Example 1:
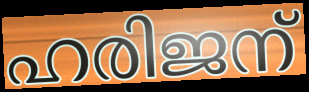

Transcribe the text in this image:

ഹരിജന്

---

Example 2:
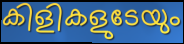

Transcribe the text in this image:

കിളികളുടേയും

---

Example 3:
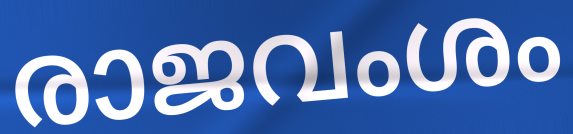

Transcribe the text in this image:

രാജവംശം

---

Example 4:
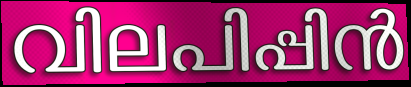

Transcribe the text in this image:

വിലപിപ്പിൻ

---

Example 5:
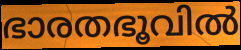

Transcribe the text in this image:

ഭാരതഭൂവിൽ